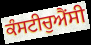
ਕੰਸਟੀਚੁਐਂਸੀ